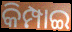
କିମ୍ପାଇ